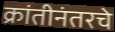
क्रांतीनंतरचे